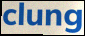
clung